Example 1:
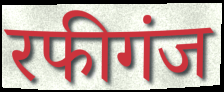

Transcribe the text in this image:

रफीगंज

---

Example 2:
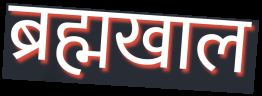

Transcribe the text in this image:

ब्रह्मखाल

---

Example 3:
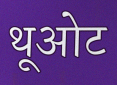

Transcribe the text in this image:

थूओट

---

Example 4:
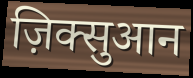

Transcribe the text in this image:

ज़िक्सुआन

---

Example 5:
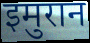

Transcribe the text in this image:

इमुरान